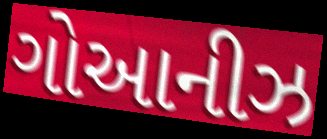
ગોઆનીઝ